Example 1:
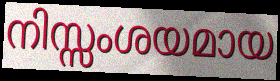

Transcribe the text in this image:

നിസ്സംശയമായ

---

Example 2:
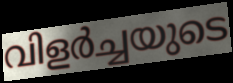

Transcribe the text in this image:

വിളർച്ചയുടെ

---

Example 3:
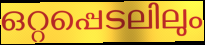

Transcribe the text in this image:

ഒറ്റപ്പെടലിലും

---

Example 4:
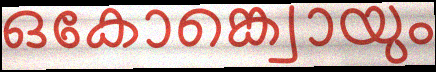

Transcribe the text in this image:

ഒകോങ്ക്വൊയും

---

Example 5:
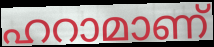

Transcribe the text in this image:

ഹറാമാണ്